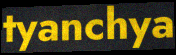
tyanchya